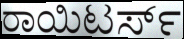
ರಾಯಿಟರ್ಸ್